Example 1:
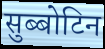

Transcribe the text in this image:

सुब्बोटिन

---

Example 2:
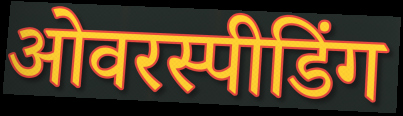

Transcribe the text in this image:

ओवरस्पीडिंग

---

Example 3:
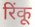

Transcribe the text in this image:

रिंकू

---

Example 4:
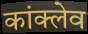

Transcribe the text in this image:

कांक्लेव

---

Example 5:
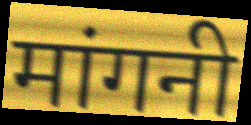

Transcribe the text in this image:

मांगनी